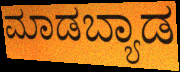
ಮಾಡಬ್ಯಾಡ